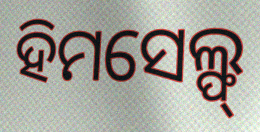
ହିମସେଲ୍ଫ୍